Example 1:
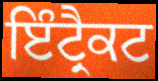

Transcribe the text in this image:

ਇੰਟ੍ਰੈਕਟ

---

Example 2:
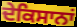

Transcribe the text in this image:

ਦੇਕਿਸਾਨਾਂ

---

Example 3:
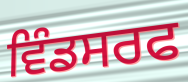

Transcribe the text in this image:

ਵਿੰਡਸਰਫ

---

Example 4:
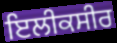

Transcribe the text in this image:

ਇਲੀਕਸੀਰ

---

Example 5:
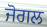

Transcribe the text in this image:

ਜੋਗਲ